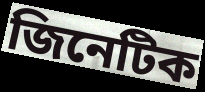
জিনেটিক